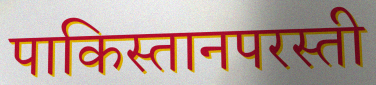
पाकिस्तानपरस्ती